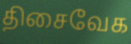
திசைவேக